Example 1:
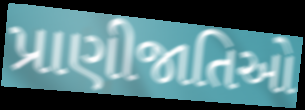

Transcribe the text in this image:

પ્રાણીજાતિઓ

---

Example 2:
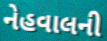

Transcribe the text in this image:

નેહવાલની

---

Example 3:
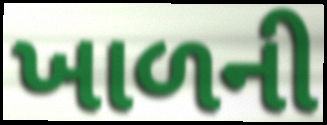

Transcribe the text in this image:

ખાળની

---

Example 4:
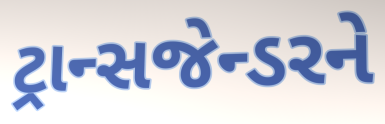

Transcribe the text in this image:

ટ્રાન્સજેન્ડરને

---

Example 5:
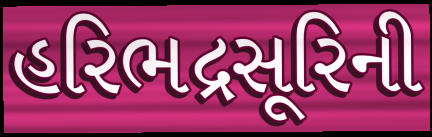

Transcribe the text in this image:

હરિભદ્રસૂરિની